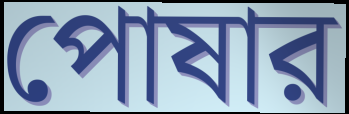
পোষার